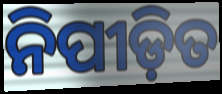
ନିପୀଡ଼ିତ